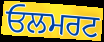
ਓਲਮਰਟ